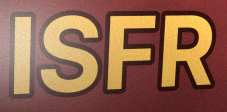
ISFR